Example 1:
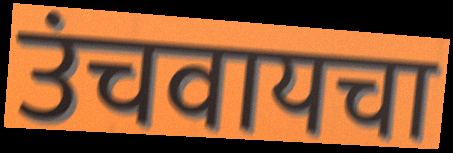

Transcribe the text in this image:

उंचवायचा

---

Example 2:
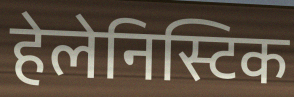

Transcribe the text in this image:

हेलेनिस्टिक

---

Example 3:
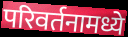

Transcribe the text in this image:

परिवर्तनामध्ये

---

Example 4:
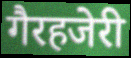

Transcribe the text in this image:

गैरहजेरी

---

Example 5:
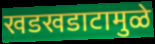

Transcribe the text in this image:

खडखडाटामुळे